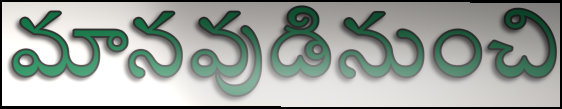
మానవుడినుంచి